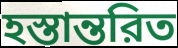
হস্তান্তরিত